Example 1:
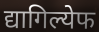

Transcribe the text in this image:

द्यागिल्येफ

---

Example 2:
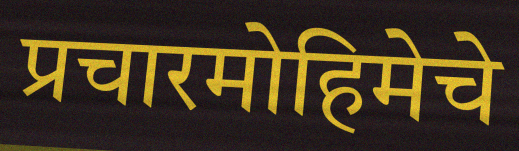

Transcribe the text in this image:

प्रचारमोहिमेचे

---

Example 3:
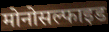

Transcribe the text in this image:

मोनोसल्फाइड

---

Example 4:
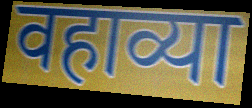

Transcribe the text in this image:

वहाव्या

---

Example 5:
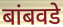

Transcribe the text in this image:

बांबवडे